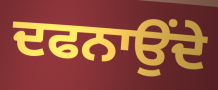
ਦਫਨਾਉਂਦੇ